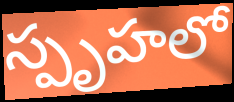
స్పృహలో